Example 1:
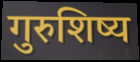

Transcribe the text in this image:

गुरुशिष्य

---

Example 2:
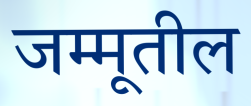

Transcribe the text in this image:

जम्मूतील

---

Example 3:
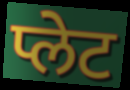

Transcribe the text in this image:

प्लेट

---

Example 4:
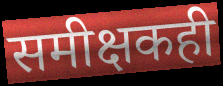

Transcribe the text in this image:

समीक्षकही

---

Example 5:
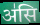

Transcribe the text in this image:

अ॑सि